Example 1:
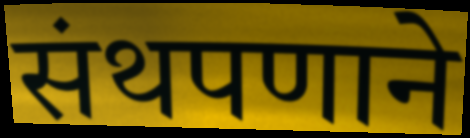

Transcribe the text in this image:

संथपणाने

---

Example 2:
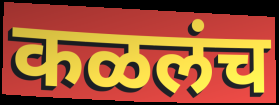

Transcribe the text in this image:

कळलंच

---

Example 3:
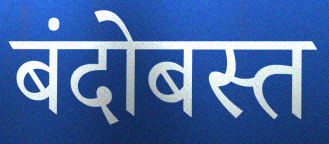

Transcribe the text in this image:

बंदोबस्त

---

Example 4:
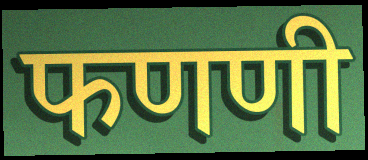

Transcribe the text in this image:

फणणी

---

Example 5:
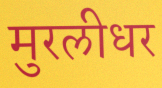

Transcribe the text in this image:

मुरलीधर